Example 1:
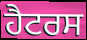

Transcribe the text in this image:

ਹੈਟਰਸ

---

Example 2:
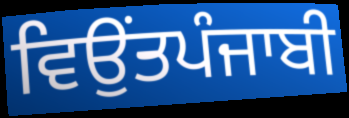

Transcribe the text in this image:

ਵਿਉਂਤਪੰਜਾਬੀ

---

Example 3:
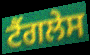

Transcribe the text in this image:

ਟੈਂਗਲੇਸ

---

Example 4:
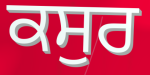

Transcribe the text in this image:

ਕਸੁਰ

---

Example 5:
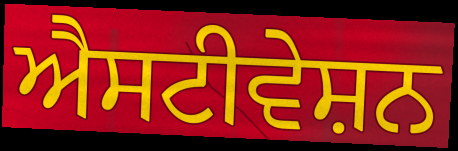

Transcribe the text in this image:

ਐਸਟੀਵੇਸ਼ਨ